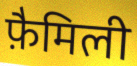
फ़ैमिली